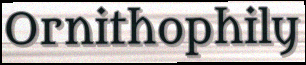
Ornithophily